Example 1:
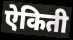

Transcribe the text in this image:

ऐकिती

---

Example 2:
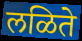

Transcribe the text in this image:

लळिते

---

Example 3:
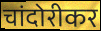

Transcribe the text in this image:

चांदोरीकर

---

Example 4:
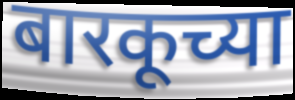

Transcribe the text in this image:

बारकूच्या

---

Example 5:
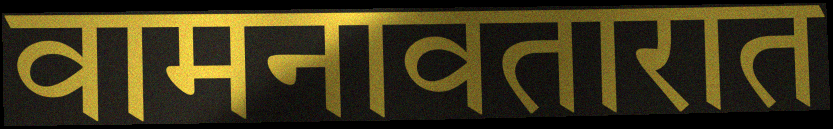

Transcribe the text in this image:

वामनावतारात